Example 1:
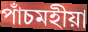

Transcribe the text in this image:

পাঁচমহীয়া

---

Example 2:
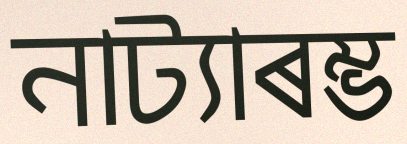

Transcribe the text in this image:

নাট্যাৰম্ভ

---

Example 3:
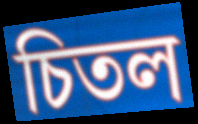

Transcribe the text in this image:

চিতল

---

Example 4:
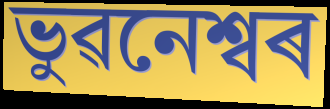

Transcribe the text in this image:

ভুৱনেশ্বৰ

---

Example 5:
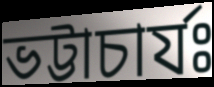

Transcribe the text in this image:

ভট্টাচাৰ্যঃ